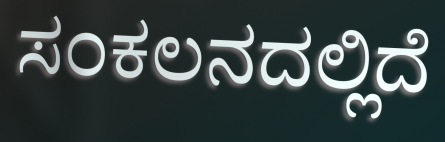
ಸಂಕಲನದಲ್ಲಿದೆ